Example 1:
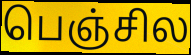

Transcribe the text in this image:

பெஞ்சில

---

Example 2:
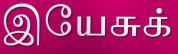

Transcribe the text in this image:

இயேசுக்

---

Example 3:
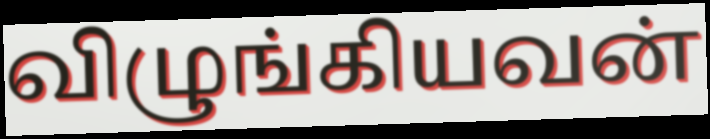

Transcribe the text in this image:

விழுங்கியவன்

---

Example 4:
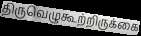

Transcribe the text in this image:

திருவெழுகூற்றிருக்கை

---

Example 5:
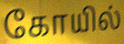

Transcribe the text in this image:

கோயில்